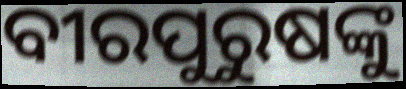
ବୀରପୁରୁଷଙ୍କୁ